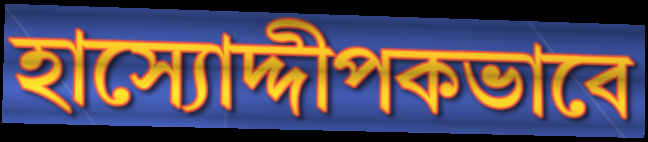
হাস্যোদ্দীপকভাবে